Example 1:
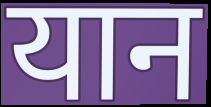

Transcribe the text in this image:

यान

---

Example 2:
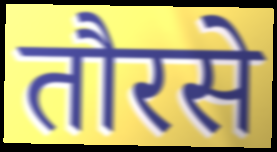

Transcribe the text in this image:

तौरसे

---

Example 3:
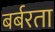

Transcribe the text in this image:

बर्बरता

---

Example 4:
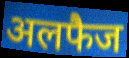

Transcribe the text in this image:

अलफैज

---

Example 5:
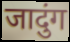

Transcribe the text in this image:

जादुंग